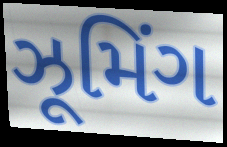
ઝૂમિંગ